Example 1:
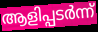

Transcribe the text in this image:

ആളിപ്പടർന്ന്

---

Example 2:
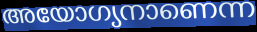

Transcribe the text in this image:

അയോഗ്യനാണെന്ന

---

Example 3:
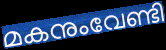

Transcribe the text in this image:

മകനുംവേണ്ടി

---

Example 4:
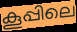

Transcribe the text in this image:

കൂപ്പിലെ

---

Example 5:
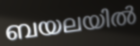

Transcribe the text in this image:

ബയലയിൽ